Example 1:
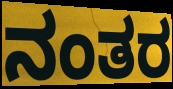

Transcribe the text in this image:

ನಂತರ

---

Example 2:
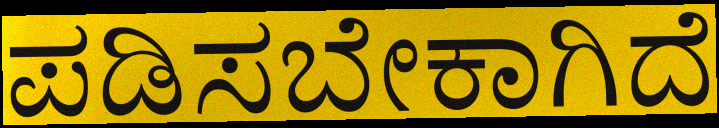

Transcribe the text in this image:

ಪಡಿಸಬೇಕಾಗಿದೆ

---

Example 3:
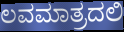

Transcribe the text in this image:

ಲವಮಾತ್ರದಲಿ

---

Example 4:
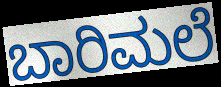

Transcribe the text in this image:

ಬಾರಿಮಲೆ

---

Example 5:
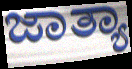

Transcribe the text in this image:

ಜಾತ್ಯಾ